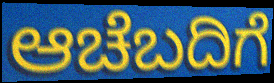
ಆಚೆಬದಿಗೆ